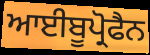
ਆਈਬੂਪ੍ਰੋਫੈਨ